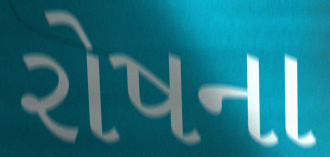
રોષના